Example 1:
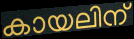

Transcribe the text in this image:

കായലിന്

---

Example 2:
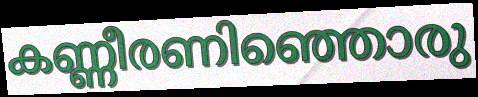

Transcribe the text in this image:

കണ്ണീരണിഞ്ഞൊരു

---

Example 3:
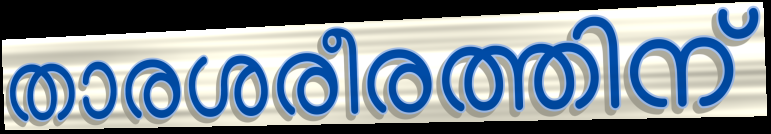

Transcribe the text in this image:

താരശരീരത്തിന്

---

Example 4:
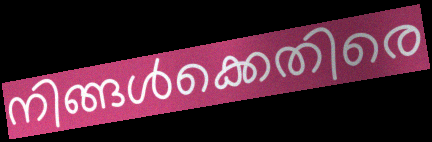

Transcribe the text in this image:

നിങ്ങൾക്കെതിരെ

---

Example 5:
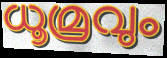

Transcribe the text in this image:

ധൂമ്രവും